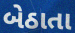
બેઠાતા